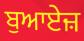
ਬੁਆਏਜ਼